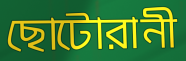
ছোটোরানী